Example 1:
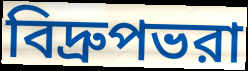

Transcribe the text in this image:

বিদ্রুপভরা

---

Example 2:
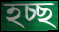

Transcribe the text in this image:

হচ্ছ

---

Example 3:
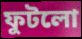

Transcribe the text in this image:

ফুটলো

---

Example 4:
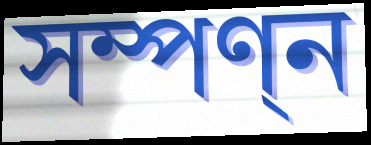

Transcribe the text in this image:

সম্পণ্ন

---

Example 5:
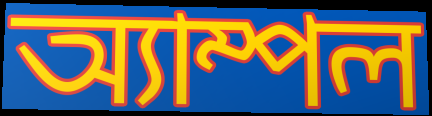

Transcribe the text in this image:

অ্যাম্পল